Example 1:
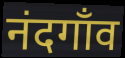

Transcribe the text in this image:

नंदगाँव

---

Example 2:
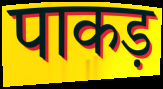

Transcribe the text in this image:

पाकड़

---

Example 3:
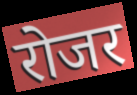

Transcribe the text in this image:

रोजर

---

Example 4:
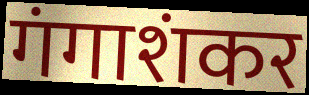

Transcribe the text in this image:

गंगाशंकर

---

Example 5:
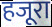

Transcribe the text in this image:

हजूरा